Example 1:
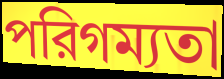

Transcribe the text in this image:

পরিগম্যতা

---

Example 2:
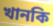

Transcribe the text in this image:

খানকি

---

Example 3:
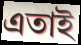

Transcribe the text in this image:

এতাই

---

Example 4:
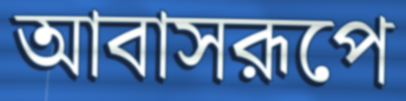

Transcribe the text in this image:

আবাসরূপে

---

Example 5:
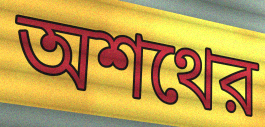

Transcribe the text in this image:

অশথের